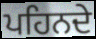
ਪਹਿਨਦੇ